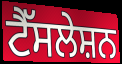
ਟੈੱਸਲੇਸ਼ਨ